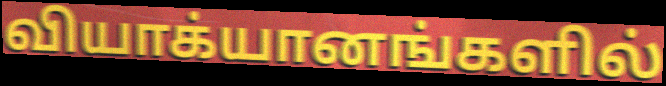
வியாக்யானங்களில்